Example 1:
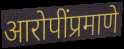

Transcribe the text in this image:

आरोपींप्रमाणे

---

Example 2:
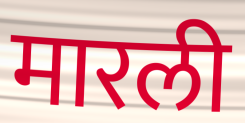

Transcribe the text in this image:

मारली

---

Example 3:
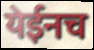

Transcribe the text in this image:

येईनच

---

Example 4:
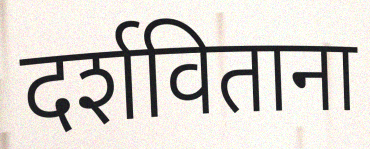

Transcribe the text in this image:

दर्शविताना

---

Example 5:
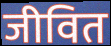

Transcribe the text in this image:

जीवित